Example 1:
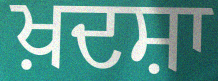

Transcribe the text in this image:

ਖ਼ਦਸ਼ਾ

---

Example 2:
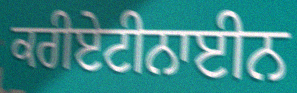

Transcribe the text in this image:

ਕਰੀਏਟੀਨਾਈਨ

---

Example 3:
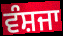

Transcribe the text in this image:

ਵੰਸ਼ਜਾ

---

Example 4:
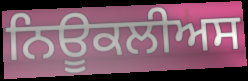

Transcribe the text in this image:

ਨਿਊਕਲੀਅਸ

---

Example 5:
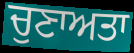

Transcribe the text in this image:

ਚੁਣਾਅਤਾ